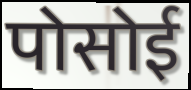
पोसोई